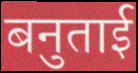
बनुताई